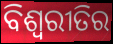
ବିଶ୍ଵରୀତିର